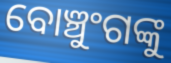
ବୋଞ୍ଚୁଂଗଙ୍କୁ